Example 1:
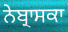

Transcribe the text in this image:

ਨੇਬ੍ਰਾਸਕਾ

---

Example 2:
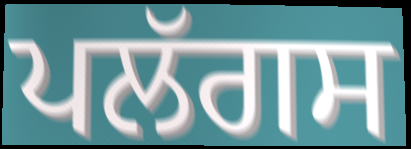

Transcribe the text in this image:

ਪਲੱਗਸ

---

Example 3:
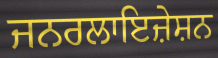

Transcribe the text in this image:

ਜਨਰਲਾਇਜ਼ੇਸ਼ਨ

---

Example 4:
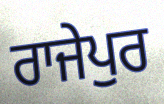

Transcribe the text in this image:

ਰਾਜੇਪੁਰ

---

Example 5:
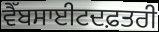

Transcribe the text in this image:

ਵੈੱਬਸਾਈਟਦਫ਼ਤਰੀ